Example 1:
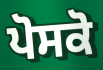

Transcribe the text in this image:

ਪੋਸਕੋ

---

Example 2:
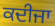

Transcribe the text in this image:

ਕਦੀਜਾ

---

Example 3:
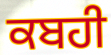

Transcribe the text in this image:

ਕਬਹੀ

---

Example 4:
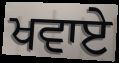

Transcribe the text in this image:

ਖਵਾਏ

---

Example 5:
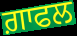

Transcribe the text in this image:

ਗ਼ਾਫਲ